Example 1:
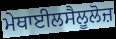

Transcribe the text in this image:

ਮੇਥਾਈਲਸੈਲੂਲੋਜ਼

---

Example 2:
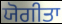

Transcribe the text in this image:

ਯੋਗੀਤਾ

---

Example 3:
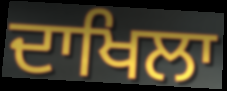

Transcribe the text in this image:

ਦਾਖਿਲਾ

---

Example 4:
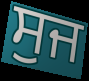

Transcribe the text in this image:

ਸੁਜ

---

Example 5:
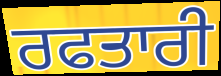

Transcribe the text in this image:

ਰਫਤਾਰੀ